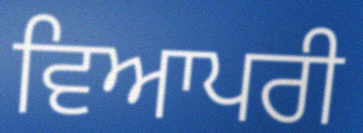
ਵਿਆਪਰੀ